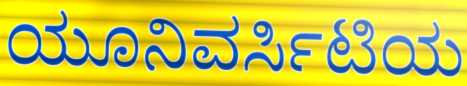
ಯೂನಿವರ್ಸಿಟಿಯ